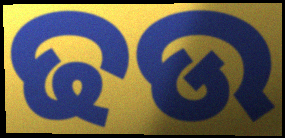
ଢଉ